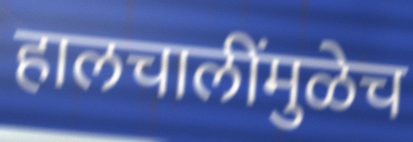
हालचालींमुळेच